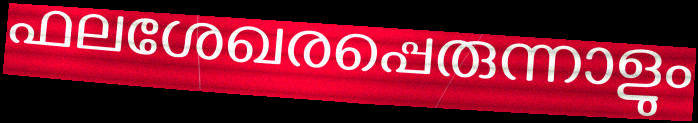
ഫലശേഖരപ്പെരുന്നാളും